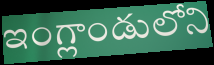
ఇంగ్లాండులోని